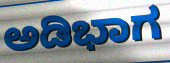
ಅಡಿಭಾಗ